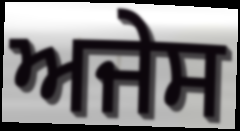
ਅਜੇਸ